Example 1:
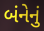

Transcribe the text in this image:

બંનેનું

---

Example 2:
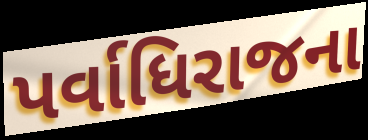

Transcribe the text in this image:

પર્વાધિરાજના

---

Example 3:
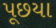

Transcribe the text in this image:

પૂછયા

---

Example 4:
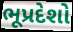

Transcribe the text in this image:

ભૂપ્રદેશો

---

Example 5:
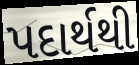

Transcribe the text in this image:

પદાર્થથી